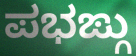
ಪಭಙ್ಗು